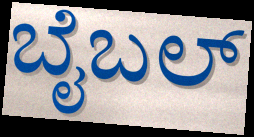
ಬೈಬಲ್